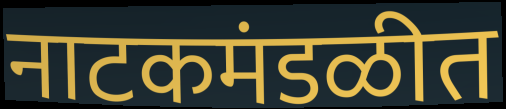
नाटकमंडळीत